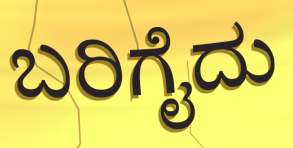
ಬರಿಗೈದು